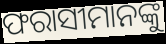
ଫରାସୀମାନଙ୍କୁ